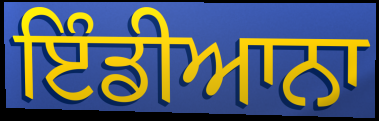
ਇੰਡੀਆਨਾ